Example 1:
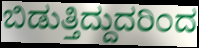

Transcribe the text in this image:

ಬಿಡುತ್ತಿದ್ದುದರಿಂದ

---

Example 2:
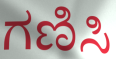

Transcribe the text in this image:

ಗಣಿಸಿ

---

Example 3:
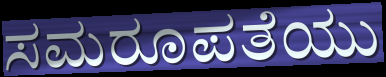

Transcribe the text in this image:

ಸಮರೂಪತೆಯು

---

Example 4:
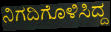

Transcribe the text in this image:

ನಿಗದಿಗೊಳಿಸಿದ್ದ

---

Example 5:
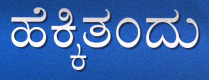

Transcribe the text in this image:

ಹೆಕ್ಕಿತಂದು